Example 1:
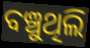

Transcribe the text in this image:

ବଞ୍ଚୁଥିଲି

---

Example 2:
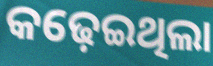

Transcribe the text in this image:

କଢ଼େଇଥିଲା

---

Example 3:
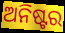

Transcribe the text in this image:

ଅନିଷ୍ଟର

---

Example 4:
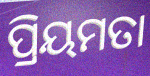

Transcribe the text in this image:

ପ୍ରିୟମତା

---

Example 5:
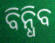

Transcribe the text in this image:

ବିନ୍ଧିବ